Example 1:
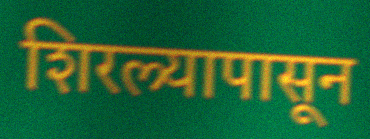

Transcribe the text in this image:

शिरल्यापासून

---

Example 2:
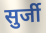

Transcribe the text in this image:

सुर्जी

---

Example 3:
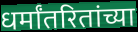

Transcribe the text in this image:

धर्मांतरितांच्या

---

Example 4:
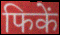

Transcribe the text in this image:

फिकें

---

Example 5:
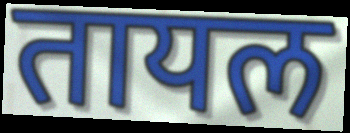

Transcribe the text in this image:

तायल